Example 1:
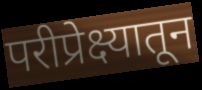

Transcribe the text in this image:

परीप्रेक्ष्यातून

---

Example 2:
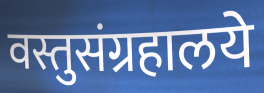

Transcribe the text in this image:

वस्तुसंग्रहालये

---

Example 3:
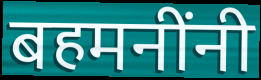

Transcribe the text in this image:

बहमनींनी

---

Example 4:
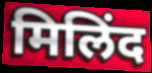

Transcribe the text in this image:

मिलिंद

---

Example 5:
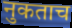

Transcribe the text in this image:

नुकताच